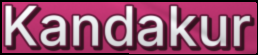
Kandakur